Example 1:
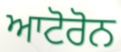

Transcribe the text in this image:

ਆਟੋਰੋਨ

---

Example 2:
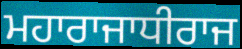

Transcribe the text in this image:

ਮਹਾਰਾਜਾਧੀਰਾਜ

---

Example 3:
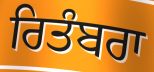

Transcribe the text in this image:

ਰਿਤੰਬਰਾ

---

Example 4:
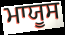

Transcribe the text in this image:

ਮਾਯੂਸ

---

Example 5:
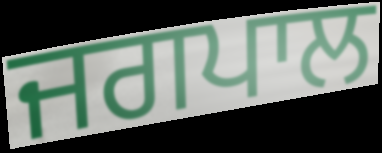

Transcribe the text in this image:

ਜਗਪਾਲ